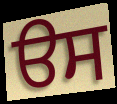
ੳਸ